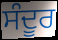
ਸੰਦੂਰ